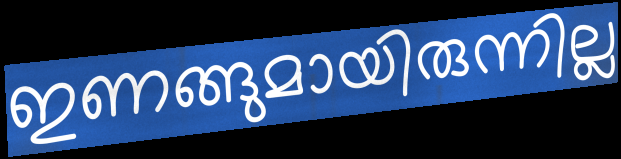
ഇണങ്ങുമായിരുന്നില്ല